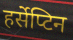
हर्सेप्टिन